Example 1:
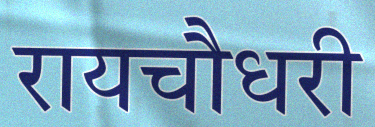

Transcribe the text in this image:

रायचौधरी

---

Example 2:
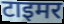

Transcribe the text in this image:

टाइमर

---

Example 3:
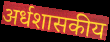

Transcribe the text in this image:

अर्धशासकीय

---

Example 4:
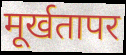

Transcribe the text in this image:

मूर्खतापर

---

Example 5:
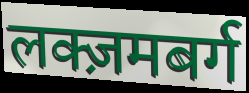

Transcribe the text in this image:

लक्ज़मबर्ग